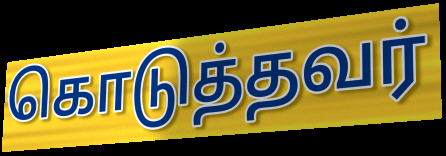
கொடுத்தவர்